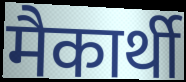
मैकार्थी